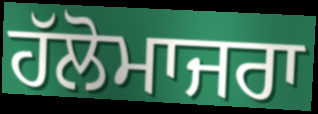
ਹੱਲੋਮਾਜਰਾ